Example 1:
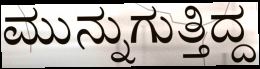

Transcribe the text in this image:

ಮುನ್ನುಗುತ್ತಿದ್ದ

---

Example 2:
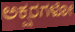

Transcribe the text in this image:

ಅಕ್ಷರಗಳೋ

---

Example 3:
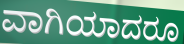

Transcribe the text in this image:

ವಾಗಿಯಾದರೂ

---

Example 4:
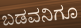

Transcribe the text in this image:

ಬಡವನಿಗೂ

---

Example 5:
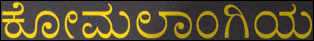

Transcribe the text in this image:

ಕೋಮಲಾಂಗಿಯ